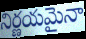
నిర్ణయమైనా